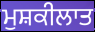
ਮੁਸ਼ਕੀਲਾਤ